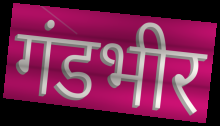
गंडभीर